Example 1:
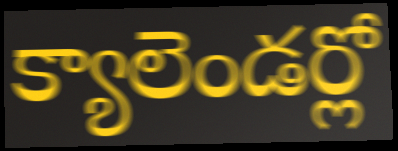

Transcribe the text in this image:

క్యాలెండర్లో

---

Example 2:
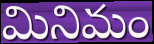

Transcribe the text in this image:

మినిమం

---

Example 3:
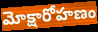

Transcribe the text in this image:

మోక్షారోహణం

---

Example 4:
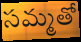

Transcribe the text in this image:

సమ్మతో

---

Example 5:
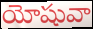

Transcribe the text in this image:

యోషువా